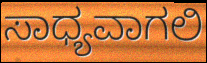
ಸಾಧ್ಯವಾಗಲಿ